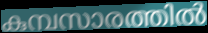
കുമ്പസാരത്തിൽ